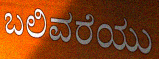
ಬಲಿವರೆಯು